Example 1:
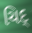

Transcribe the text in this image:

ચિદ્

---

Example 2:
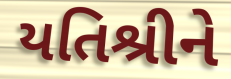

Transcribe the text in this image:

યતિશ્રીને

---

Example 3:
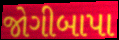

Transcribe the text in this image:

જોગીબાપા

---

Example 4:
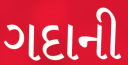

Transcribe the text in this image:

ગદાની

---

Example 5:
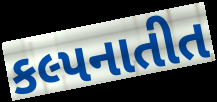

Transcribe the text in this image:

કલ્પનાતીત